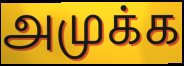
அமுக்க